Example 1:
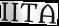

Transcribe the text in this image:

IITA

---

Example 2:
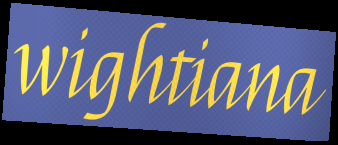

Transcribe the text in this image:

wightiana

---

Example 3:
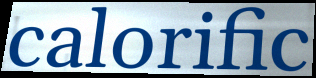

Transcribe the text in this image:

calorific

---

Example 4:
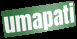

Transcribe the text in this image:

umapati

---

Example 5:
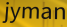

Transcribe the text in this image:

jyman